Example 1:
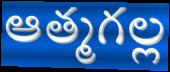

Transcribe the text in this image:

ఆత్మగల్ల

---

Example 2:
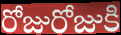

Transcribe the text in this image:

రోజురోజుకి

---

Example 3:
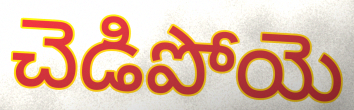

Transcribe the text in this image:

చెడిపోయె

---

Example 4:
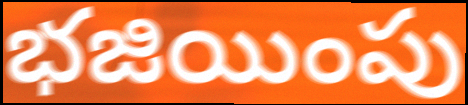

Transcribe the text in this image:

భజియింపు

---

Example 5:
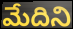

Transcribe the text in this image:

మేదిని